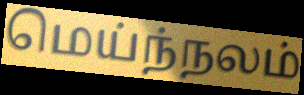
மெய்ந்நலம்